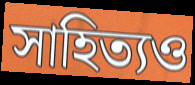
সাহিত্যও